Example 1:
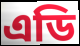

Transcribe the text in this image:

এডি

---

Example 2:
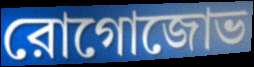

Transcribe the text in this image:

রোগোজোভ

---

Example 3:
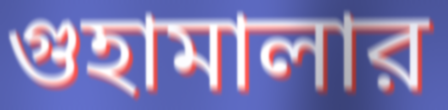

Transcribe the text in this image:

গুহামালার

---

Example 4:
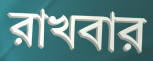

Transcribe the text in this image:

রাখবার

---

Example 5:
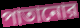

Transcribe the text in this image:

পাতানোর